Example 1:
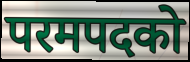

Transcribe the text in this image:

परमपदको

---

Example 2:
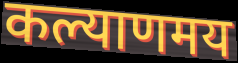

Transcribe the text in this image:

कल्याणमय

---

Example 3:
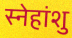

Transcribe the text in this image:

स्नेहांशु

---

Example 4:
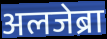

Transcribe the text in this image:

अलजेब्रा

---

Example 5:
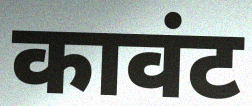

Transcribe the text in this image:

कावंट